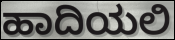
ಹಾದಿಯಲಿ